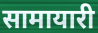
सामायारी